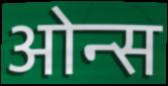
ओन्स